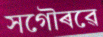
সগৌৰৱে